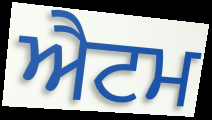
ਐਟਮ